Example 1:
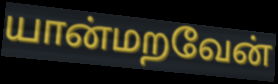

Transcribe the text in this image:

யான்மறவேன்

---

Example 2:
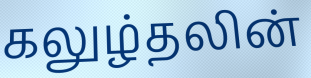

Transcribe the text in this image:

கலுழ்தலின்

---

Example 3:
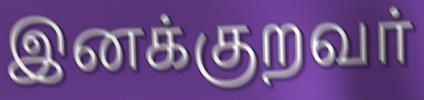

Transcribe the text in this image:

இனக்குறவர்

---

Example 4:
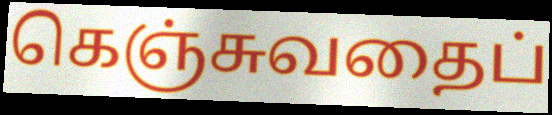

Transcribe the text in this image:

கெஞ்சுவதைப்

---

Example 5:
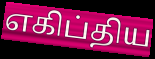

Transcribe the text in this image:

எகிப்திய